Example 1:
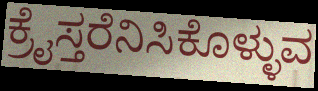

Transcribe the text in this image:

ಕ್ರೈಸ್ತರೆನಿಸಿಕೊಳ್ಳುವ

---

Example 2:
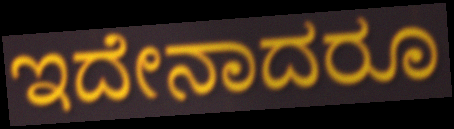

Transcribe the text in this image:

ಇದೇನಾದರೂ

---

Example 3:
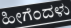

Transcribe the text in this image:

ಹೀಗೆಂದಳು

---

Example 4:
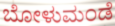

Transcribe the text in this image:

ಬೋಳುಮಂಡೆ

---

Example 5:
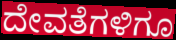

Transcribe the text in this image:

ದೇವತೆಗಳಿಗೂ